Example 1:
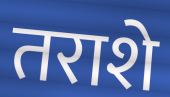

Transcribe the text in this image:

तराशे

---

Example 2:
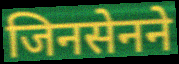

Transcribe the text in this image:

जिनसेनने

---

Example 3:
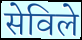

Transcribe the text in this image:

सेविले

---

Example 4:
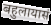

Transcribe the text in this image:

बहुलायासं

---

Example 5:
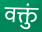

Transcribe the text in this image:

वक्तुं